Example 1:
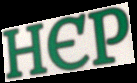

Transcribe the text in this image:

HEP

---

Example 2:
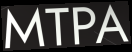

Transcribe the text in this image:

MTPA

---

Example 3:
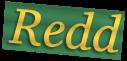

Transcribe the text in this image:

Redd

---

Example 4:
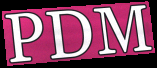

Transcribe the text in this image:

PDM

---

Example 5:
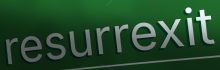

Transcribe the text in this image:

resurrexit